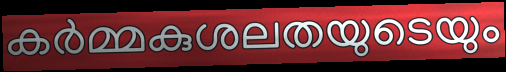
കർമ്മകുശലതയുടെയും